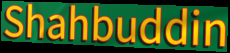
Shahbuddin